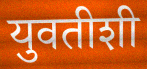
युवतीशी